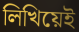
লিখিয়েই